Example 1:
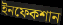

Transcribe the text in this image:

ইনফেকশান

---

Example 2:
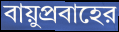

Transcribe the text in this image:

বায়ুপ্রবাহের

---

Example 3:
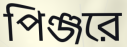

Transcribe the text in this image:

পিঞ্জরে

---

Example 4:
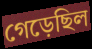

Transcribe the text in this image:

গেড়েছিল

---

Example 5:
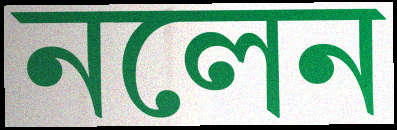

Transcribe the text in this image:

নলেন